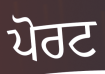
ਪੋਰਟ